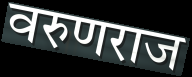
वरुणराज